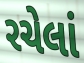
રચેલાં